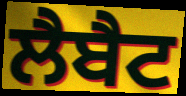
ਲੈਬੈਟ